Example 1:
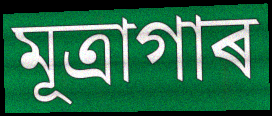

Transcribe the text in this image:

মূত্ৰাগাৰ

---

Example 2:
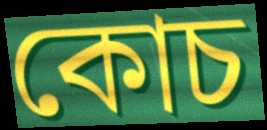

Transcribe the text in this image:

কোচ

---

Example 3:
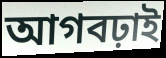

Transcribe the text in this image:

আগবঢ়াই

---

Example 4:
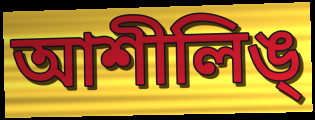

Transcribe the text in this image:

আশীলিঙ্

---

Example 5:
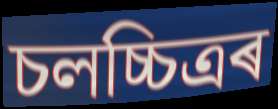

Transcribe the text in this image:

চলচ্চিত্ৰৰ